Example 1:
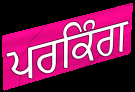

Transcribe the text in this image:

ਪਰਕਿੰਗ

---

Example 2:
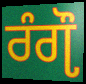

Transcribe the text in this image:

ਰੰਗੵੌ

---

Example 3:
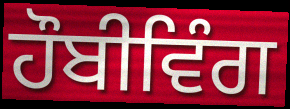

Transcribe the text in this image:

ਹੌਬੀਵਿੰਗ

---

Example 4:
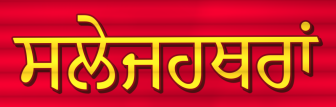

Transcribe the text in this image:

ਸਲੇਜਹਥਰਾਂ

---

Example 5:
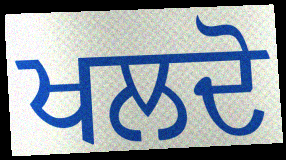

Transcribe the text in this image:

ਖਲਦੋ